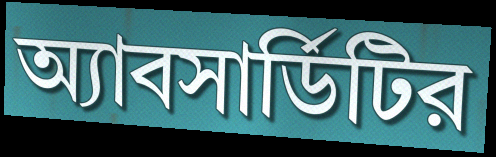
অ্যাবসার্ডিটির